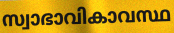
സ്വാഭാവികാവസ്ഥ